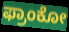
ಫ್ರಾಂಕೋ